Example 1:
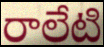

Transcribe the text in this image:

రాలేటి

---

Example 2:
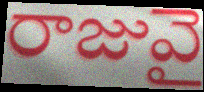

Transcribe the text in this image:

రాజువై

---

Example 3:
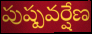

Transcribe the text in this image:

పుష్పవర్షేణ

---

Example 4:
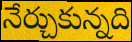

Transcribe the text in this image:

నేర్చుకున్నది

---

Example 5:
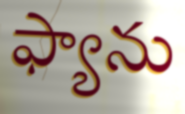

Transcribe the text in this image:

ఫ్యాను